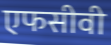
एफसीवी